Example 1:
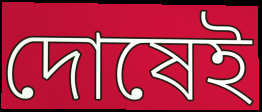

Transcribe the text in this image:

দোষেই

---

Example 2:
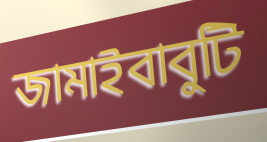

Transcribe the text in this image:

জামাইবাবুটি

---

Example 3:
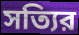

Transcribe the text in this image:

সত্যির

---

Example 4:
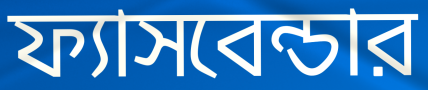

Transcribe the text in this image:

ফ্যাসবেন্ডার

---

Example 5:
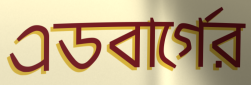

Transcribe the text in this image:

এডবার্গের